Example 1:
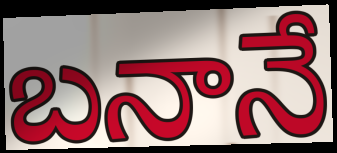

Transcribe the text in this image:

బనానే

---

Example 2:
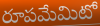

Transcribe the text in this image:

రూపమేమిటో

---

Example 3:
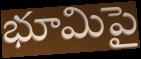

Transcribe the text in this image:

భూమిపై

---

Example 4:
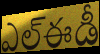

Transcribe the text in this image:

ఎల్ఈడీ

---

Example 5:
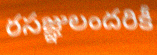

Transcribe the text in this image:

రసజ్ఞులందరికీ